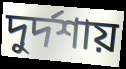
দুর্দশায়